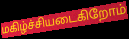
மகிழ்ச்சியடைகிறோம்